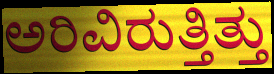
ಅರಿವಿರುತ್ತಿತ್ತು